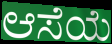
ಆಸೆಯೆ